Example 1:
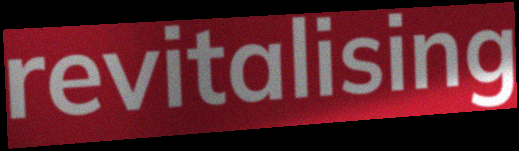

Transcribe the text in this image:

revitalising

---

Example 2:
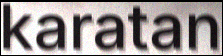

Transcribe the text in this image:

karatan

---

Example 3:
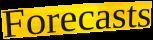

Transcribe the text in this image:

Forecasts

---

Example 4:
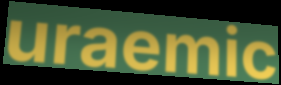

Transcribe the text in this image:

uraemic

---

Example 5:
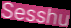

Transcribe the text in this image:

Sesshu